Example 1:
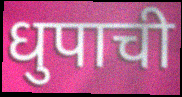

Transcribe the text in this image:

धुपाची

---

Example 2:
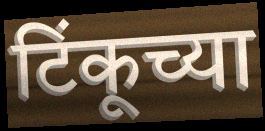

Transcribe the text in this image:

टिंकूच्या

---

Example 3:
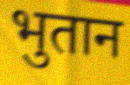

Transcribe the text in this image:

भुतान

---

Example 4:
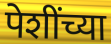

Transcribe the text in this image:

पेशींच्या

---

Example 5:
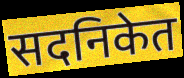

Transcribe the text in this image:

सदनिकेत